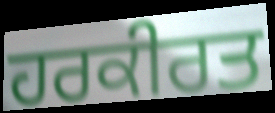
ਹਰਕੀਰਤ